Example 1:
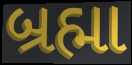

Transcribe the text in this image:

બ્રહ્મા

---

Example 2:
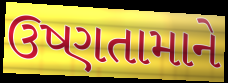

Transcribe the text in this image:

ઉષ્ણતામાને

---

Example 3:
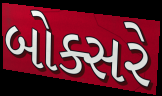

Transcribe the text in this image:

બોક્સરે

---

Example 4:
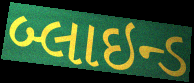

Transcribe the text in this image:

બ્લાઇન્ડ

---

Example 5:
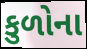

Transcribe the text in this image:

કુળોના